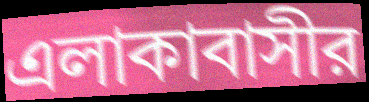
এলাকাবাসীর